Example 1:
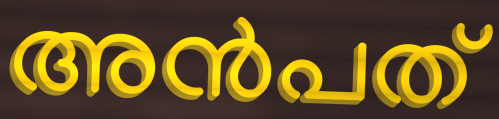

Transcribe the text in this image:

അൻപത്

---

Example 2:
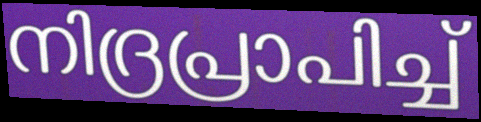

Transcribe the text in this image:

നിദ്രപ്രാപിച്ച്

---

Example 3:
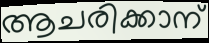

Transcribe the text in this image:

ആചരിക്കാന്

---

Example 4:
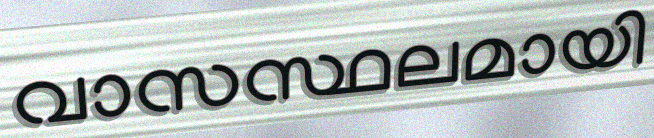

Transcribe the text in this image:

വാസസ്ഥലമായി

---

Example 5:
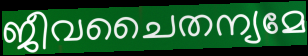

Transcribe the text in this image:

ജീവചൈതന്യമേ